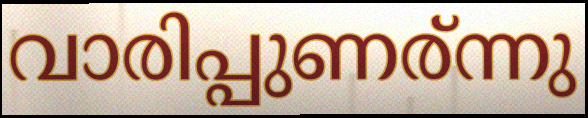
വാരിപ്പുണര്ന്നു